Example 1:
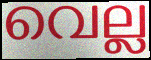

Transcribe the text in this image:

വെല്ല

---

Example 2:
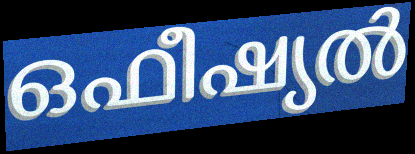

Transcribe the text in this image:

ഒഫീഷ്യൽ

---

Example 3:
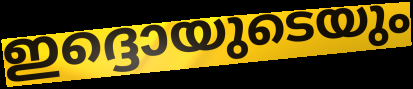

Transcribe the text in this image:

ഇദ്ദൊയുടെയും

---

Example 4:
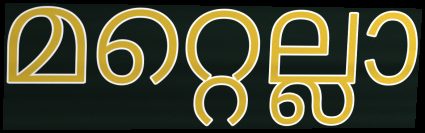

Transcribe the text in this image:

മറ്റെല്ലാ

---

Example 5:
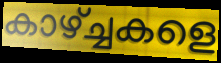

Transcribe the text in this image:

കാഴ്ച്ചകളെ